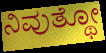
ನಿವುತ್ಥೋ